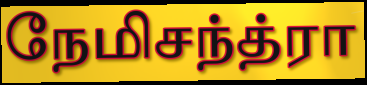
நேமிசந்த்ரா